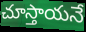
చూస్తాయనే